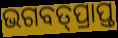
ଭଗବତ୍‌ପ୍ରାପ୍ତ